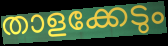
താളക്കേടും